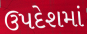
ઉપદેશમાં